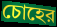
চোহের